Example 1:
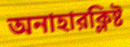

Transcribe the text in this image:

অনাহারক্লিষ্ট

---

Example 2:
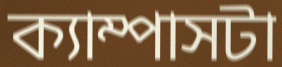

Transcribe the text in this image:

ক্যাম্পাসটা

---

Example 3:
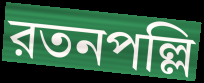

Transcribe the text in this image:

রতনপল্লি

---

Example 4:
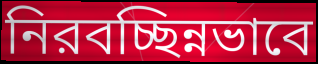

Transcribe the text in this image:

নিরবচ্ছিন্নভাবে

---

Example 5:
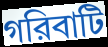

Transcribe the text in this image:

গরিবাটি